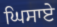
ਘਿਸਾਏ